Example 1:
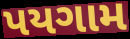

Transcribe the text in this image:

પયગામ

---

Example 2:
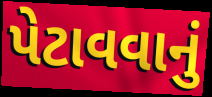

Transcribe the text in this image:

પેટાવવાનું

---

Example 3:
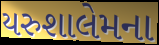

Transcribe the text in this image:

યરુશાલેમના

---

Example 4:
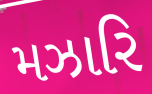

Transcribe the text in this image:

મઝારિ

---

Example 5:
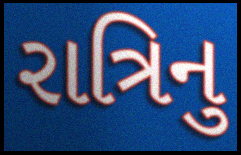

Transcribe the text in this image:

રાત્રિનુ